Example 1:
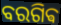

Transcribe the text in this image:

ବରଗିଵ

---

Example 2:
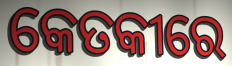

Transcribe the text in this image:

କେତକୀରେ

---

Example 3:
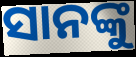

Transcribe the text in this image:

ସାନଙ୍କୁ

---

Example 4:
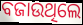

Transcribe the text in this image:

ବଜାଉଥିଲେ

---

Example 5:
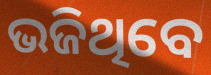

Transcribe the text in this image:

ଭଜିଥିବେ